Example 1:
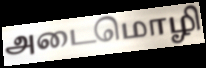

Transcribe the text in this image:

அடைமொழி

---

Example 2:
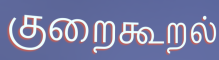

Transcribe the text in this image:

குறைகூறல்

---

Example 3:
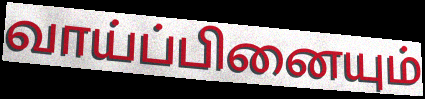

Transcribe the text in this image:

வாய்ப்பினையும்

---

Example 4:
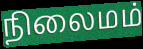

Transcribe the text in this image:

நிலைமம்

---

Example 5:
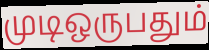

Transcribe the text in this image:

முடிஒருபதும்